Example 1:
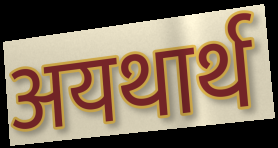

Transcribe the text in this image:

अयथार्थ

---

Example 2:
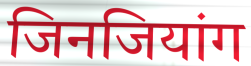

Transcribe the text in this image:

जिनजियांग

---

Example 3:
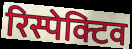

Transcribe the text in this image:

रिस्पेक्टिव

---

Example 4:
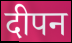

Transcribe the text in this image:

दीपन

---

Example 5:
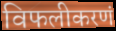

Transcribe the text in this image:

विफलीकरणं